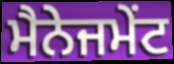
ਮੈਨੇਜਮੇੰਟ